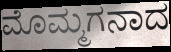
ಮೊಮ್ಮಗನಾದ